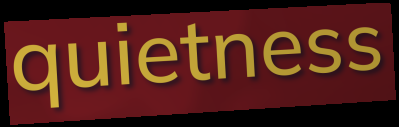
quietness